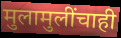
मुलामुलींचाही